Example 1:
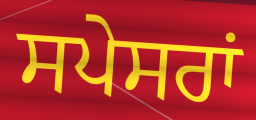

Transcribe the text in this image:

ਸਪੇਸਰਾਂ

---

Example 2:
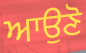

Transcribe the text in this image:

ਆਉਣੋ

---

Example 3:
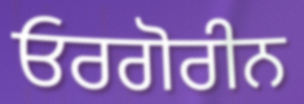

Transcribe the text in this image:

ਓਰਗੋਰੀਨ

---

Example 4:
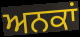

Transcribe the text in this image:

ਅਨਕਾਂ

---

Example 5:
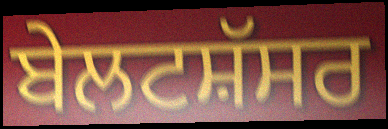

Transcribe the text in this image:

ਬੇਲਟਸ਼ੱਸਰ